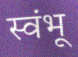
स्वंभू